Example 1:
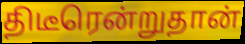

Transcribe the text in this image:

திடீரென்றுதான்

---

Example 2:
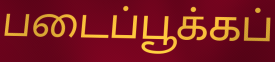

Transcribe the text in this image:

படைப்பூக்கப்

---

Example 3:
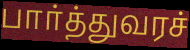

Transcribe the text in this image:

பார்த்துவரச்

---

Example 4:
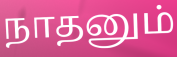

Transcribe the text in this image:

நாதனும்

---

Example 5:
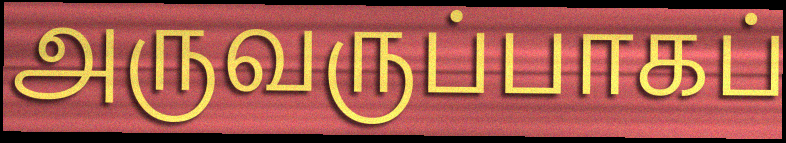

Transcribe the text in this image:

அருவருப்பாகப்